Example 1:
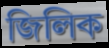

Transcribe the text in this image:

জিলিক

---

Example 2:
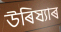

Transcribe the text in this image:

উৰিষ্যাৰ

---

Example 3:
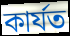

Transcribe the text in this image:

কাৰ্যত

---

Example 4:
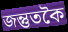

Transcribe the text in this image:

জন্তুতকৈ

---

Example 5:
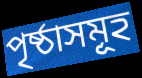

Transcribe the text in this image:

পৃষ্ঠাসমূহ